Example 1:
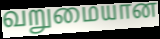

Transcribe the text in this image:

வறுமையான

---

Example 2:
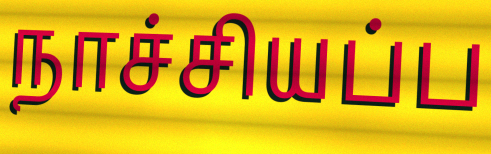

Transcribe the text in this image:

நாச்சியப்ப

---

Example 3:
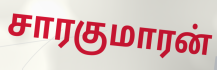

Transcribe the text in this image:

சாரகுமாரன்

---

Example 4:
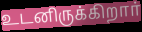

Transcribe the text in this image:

உடனிருக்கிறார்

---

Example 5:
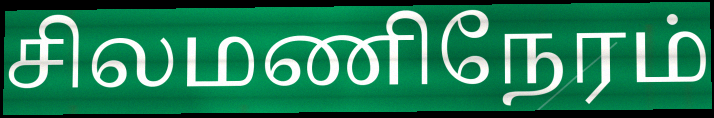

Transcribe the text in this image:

சிலமணிநேரம்